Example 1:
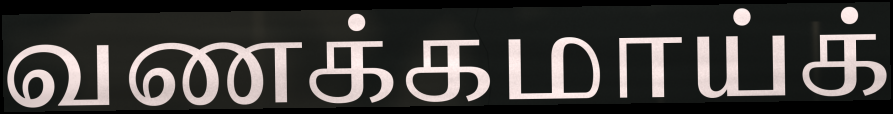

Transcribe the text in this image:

வணக்கமாய்க்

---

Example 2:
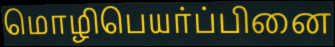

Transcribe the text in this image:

மொழிபெயர்ப்பினை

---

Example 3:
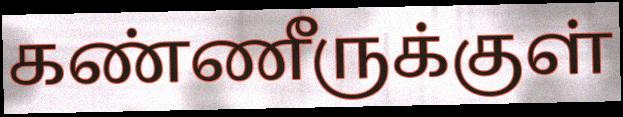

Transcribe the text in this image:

கண்ணீருக்குள்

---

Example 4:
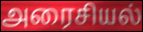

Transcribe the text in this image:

அரைசியல்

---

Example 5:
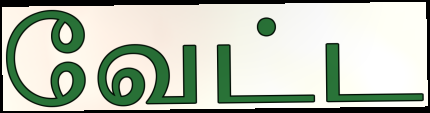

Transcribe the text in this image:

வேட்ட